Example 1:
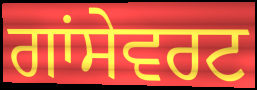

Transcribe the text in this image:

ਗਾਂਸੇਵਰਟ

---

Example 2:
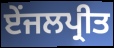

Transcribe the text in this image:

ਏਂਜਲਪ੍ਰੀਤ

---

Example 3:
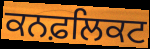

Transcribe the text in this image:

ਕਨਫ਼ਲਿਕਟ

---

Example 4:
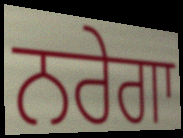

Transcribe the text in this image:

ਨਰੇਗਾ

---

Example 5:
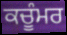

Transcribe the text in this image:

ਕਚੂੰਮਰ